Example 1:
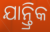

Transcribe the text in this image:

ଯାନ୍ତ୍ରିକ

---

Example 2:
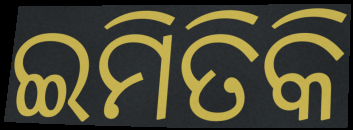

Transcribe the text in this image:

ଇମିତିକି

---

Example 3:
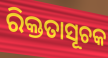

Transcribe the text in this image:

ରିକ୍ତତାସୂଚକ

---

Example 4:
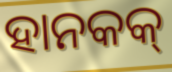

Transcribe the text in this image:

ହାନକକ୍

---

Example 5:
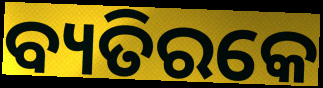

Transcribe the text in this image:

ବ୍ୟତିରକେ